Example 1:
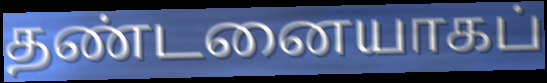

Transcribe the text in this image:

தண்டனையாகப்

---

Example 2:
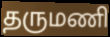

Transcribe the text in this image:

தருமணி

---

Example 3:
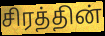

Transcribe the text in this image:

சிரத்தின்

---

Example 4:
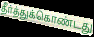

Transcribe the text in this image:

தீர்த்துக்கொண்டது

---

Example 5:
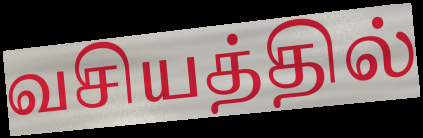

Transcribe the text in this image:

வசியத்தில்